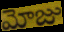
మోజు